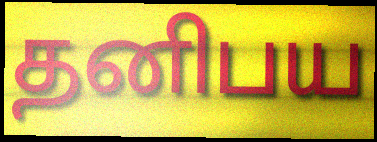
தனிபய